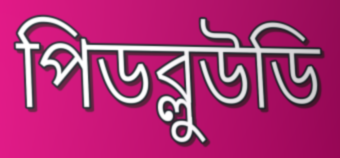
পিডব্লুউডি